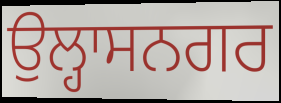
ਉਲ੍ਹਾਸਨਗਰ